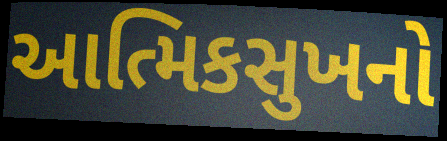
આત્મિકસુખનો